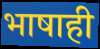
भाषाही